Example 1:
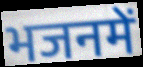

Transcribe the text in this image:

भजनमें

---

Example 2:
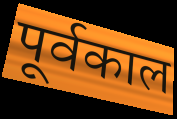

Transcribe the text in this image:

पूर्वकाल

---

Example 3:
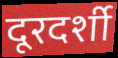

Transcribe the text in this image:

दूरदर्शी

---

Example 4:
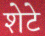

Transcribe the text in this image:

शेटे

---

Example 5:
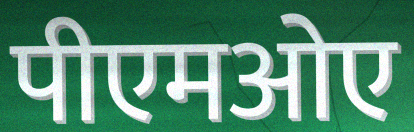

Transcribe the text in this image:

पीएमओए